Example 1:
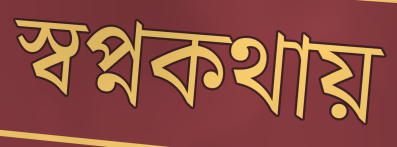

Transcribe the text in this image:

স্বপ্নকথায়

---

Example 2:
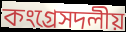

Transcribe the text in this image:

কংগ্রেসদলীয়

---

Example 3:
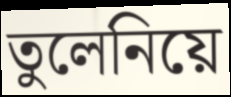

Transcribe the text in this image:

তুলেনিয়ে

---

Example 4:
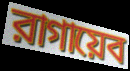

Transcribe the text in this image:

রাগায়েব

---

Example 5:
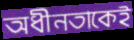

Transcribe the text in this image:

অধীনতাকেই